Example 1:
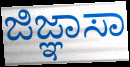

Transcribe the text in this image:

ಜಿಜ್ಞಾಸಾ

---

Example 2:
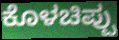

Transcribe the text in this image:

ಕೊಳಚಿಪ್ಪು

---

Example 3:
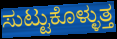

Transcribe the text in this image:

ಸುಟ್ಟುಕೊಳ್ಳುತ್ತ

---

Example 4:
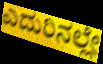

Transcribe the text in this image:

ಎದುರಿನಲ್ಲೇ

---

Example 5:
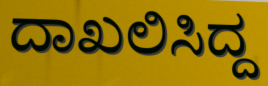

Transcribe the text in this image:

ದಾಖಲಿಸಿದ್ದ